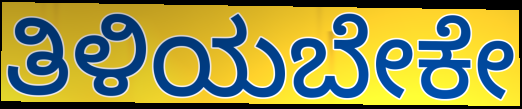
ತಿಳಿಯಬೇಕೇ